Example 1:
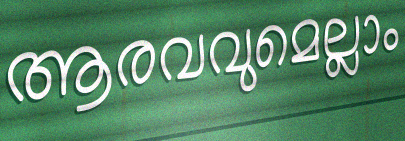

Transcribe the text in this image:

ആരവവുമെല്ലാം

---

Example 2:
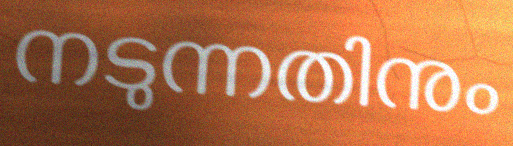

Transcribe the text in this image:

നടുന്നതിനും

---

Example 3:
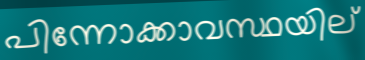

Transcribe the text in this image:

പിന്നോക്കാവസ്ഥയില്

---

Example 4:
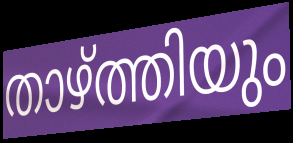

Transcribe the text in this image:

താഴ്ത്തിയും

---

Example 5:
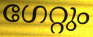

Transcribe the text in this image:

ഗേറ്റും